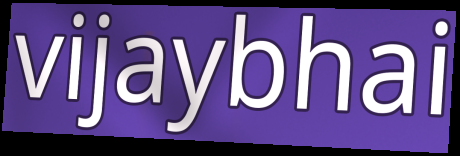
vijaybhai